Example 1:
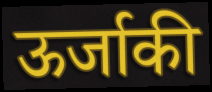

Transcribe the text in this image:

ऊर्जाकी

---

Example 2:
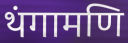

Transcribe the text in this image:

थंगामणि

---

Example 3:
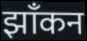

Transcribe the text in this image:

झाँकन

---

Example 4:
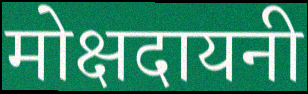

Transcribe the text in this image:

मोक्षदायनी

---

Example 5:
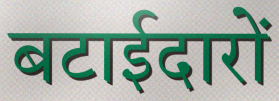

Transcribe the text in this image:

बटाईदारों